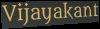
Vijayakant